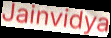
Jainvidya